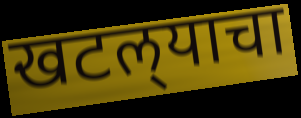
खटल्याचा